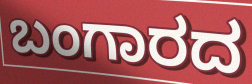
ಬಂಗಾರದ